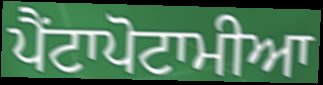
ਪੈਂਟਾਪੋਟਾਮੀਆ